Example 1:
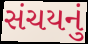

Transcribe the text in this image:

સંચયનું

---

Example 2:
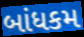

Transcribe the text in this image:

બાંધકમ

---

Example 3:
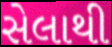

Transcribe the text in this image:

સેલાથી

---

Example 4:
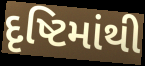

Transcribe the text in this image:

દૃષ્ટિમાંથી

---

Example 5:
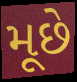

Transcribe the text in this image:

મૂછે